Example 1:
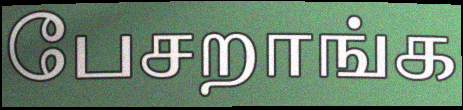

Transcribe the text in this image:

பேசறாங்க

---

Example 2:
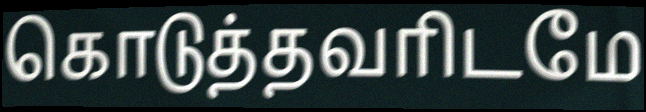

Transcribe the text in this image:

கொடுத்தவரிடமே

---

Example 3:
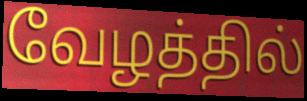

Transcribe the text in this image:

வேழத்தில்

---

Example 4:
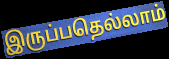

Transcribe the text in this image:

இருப்பதெல்லாம்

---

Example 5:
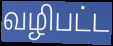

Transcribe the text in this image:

வழிபட்ட